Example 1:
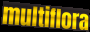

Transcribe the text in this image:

multiflora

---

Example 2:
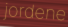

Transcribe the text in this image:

jordene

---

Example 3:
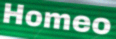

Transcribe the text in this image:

Homeo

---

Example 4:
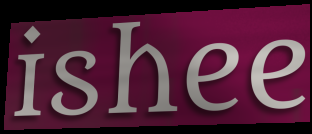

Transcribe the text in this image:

ishee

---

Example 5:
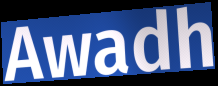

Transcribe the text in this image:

Awadh